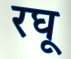
रघू